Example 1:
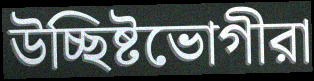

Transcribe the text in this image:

উচ্ছিষ্টভোগীরা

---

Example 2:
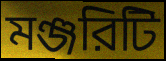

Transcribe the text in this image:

মঞ্জরিটি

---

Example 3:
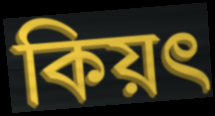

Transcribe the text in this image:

কিয়ৎ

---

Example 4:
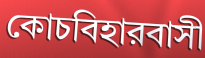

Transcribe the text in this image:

কোচবিহারবাসী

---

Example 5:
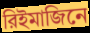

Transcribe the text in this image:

রিইমাজিনে